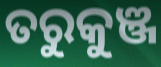
ତରୁକୁଞ୍ଜ